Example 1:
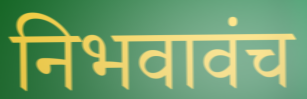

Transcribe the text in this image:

निभवावंच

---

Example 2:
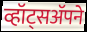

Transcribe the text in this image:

व्हॉट्सॲपने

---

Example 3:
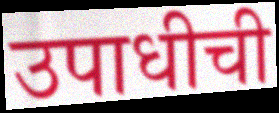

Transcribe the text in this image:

उपाधीची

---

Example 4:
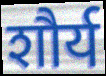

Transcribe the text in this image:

शौर्य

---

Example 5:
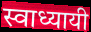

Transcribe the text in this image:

स्वाध्यायी